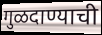
गुळदाण्याची